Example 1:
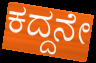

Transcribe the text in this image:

ಕದ್ದನೇ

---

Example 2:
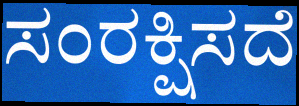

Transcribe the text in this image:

ಸಂರಕ್ಷಿಸದೆ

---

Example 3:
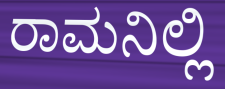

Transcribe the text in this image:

ರಾಮನಿಲ್ಲಿ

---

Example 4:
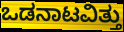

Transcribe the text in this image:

ಒಡನಾಟವಿತ್ತು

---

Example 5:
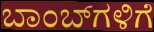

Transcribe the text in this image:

ಬಾಂಬ್‌ಗಳಿಗೆ